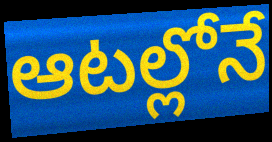
ఆటల్లోనే